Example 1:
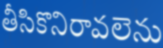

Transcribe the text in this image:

తీసికొనిరావలెను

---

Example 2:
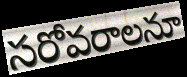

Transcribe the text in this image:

సరోవరాలనూ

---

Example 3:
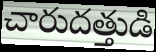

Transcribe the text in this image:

చారుదత్తుడి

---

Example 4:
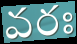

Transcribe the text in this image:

వరః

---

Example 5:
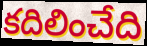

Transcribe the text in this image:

కదిలించేది